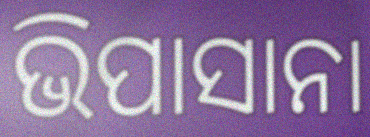
ଭିପାସାନା